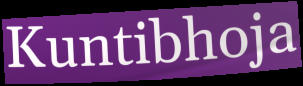
Kuntibhoja